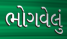
ભોગવેલું